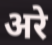
अरे